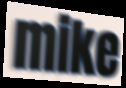
mike